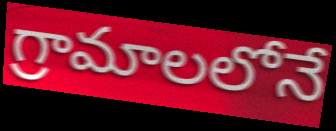
గ్రామాలలోనే